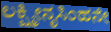
ಲಕ್ಷ್ಮೀನೃಸಿಂಹನೇ